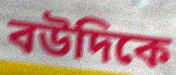
বউদিকে